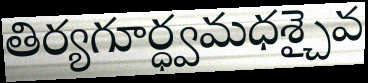
తిర్యగూర్ధ్వమధశ్చైవ